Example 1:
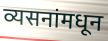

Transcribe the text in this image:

व्यसनांमधून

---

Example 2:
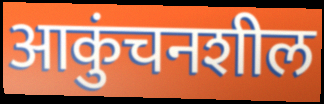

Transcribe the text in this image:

आकुंचनशील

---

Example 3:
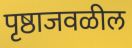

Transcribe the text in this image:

पृष्ठाजवळील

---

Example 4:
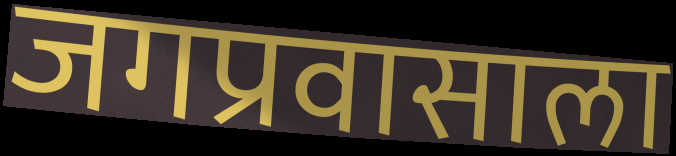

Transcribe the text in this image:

जगप्रवासाला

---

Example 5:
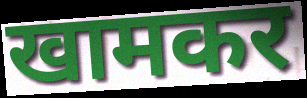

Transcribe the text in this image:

खामकर